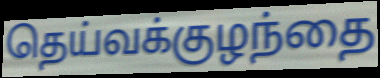
தெய்வக்குழந்தை